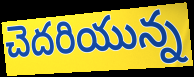
చెదరియున్న